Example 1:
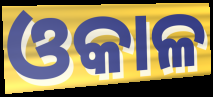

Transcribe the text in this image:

ଓକାଳ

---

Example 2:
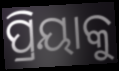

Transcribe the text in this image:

ପ୍ରିୟାକୁ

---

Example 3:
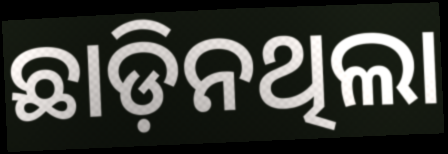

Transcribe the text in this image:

ଛାଡ଼ିନଥିଲା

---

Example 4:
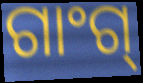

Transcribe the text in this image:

ଗାଂଗ୍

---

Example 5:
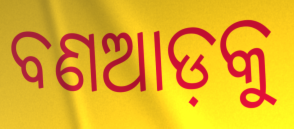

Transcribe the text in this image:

ବଣଆଡ଼କୁ